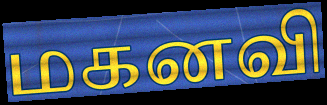
மகனவி